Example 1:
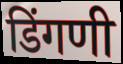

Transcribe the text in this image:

डिंगणी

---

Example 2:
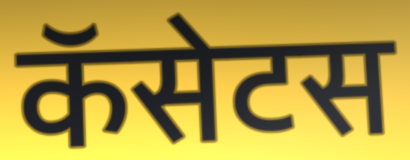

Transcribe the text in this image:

कॅसेटस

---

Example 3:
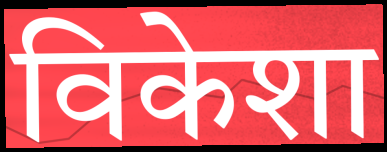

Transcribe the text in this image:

विकेशा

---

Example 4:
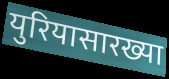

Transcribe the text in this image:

युरियासारख्या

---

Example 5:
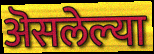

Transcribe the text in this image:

ऄसलेल्या